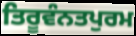
ਤਿਰੂਵੰਨਤਪੁਰਮ